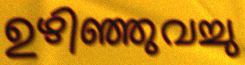
ഉഴിഞ്ഞുവച്ചു